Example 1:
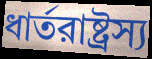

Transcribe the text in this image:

ধার্তরাষ্ট্রস্য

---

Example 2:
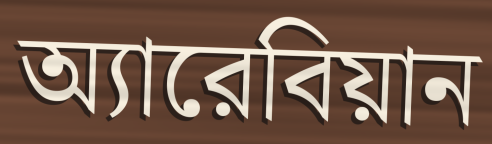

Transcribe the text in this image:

অ্যারেবিয়ান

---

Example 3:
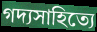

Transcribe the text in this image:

গদ্যসাহিত্যে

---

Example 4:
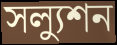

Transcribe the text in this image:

সল্যুশন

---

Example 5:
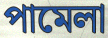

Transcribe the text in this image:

পামেলা